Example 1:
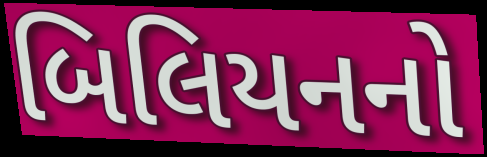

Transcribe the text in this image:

બિલિયનનો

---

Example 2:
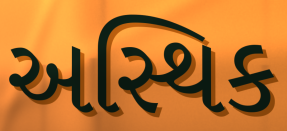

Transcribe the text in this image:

અસ્થિક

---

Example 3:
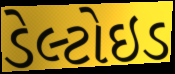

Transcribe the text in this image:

ડેલ્ટોઇડ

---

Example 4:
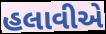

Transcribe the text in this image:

હલાવીએ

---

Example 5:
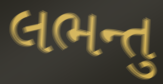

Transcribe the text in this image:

લભન્તુ